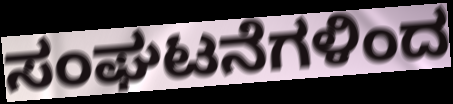
ಸಂಘಟನೆಗಳಿಂದ